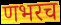
णभरच